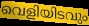
വെളിയിടവും